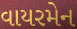
વાયરમેન